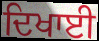
ਦਿਖਾਈ